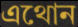
এথোন